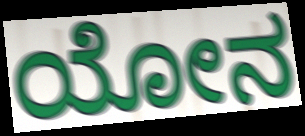
ಯೋನ